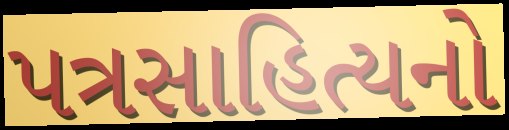
પત્રસાહિત્યનો